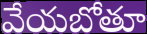
వేయబోతూ